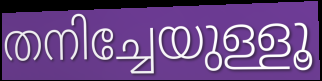
തനിച്ചേയുള്ളൂ